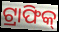
ଟ୍ରାଫିକ୍